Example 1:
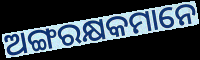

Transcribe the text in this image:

ଅଙ୍ଗରକ୍ଷକମାନେ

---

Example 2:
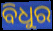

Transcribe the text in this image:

ବିଧୁର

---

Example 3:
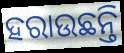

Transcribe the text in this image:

ହରାଉଛନ୍ତି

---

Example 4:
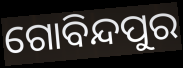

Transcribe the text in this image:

ଗୋବିନ୍ଦପୁର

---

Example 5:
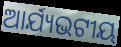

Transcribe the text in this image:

ଆର୍ଯ୍ୟଭଟୀୟ